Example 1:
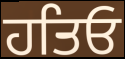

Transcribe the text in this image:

ਹਤਿਓ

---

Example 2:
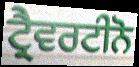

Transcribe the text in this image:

ਟ੍ਰੈਵਰਟੀਨੋ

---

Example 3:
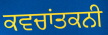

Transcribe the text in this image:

ਕਵਚਾਂਤਕਨੀ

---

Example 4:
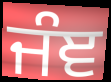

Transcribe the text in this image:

ਜੰਞ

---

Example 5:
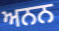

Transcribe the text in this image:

ਅਨਨ